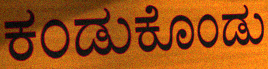
ಕಂಡುಕೊಂಡು